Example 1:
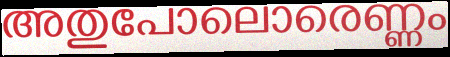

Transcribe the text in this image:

അതുപോലൊരെണ്ണം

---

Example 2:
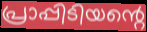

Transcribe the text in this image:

പ്രാപ്പിടിയന്റെ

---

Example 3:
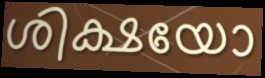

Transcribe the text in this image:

ശിക്ഷയോ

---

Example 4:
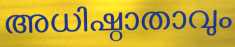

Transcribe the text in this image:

അധിഷ്ഠാതാവും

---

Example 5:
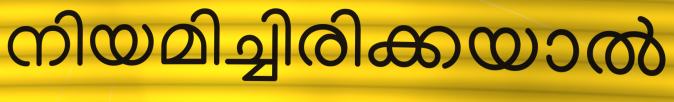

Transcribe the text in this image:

നിയമിച്ചിരിക്കയാൽ